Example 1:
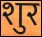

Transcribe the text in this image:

शुर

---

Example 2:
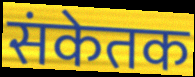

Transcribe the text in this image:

संकेतक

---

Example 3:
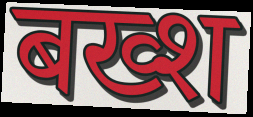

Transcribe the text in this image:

बख्श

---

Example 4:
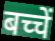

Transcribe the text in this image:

बच्चें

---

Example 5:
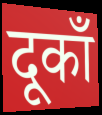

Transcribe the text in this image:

दूकाँ